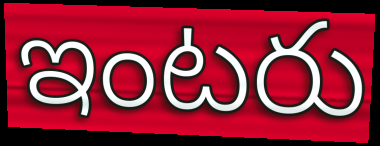
ఇంటరు